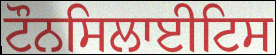
ਟੌਨਸਿਲਾਈਟਿਸ